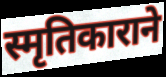
स्मृतिकाराने